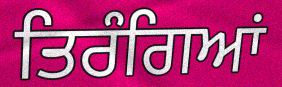
ਤਿਰੰਗਿਆਂ